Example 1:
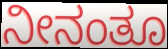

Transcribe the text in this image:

ನೀನಂತೂ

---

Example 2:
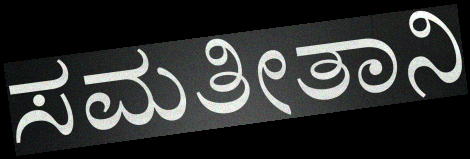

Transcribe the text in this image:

ಸಮತೀತಾನಿ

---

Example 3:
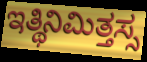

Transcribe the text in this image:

ಇತ್ಥಿನಿಮಿತ್ತಸ್ಸ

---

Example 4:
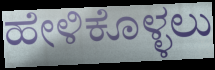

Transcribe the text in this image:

ಹೇಳಿಕೊಳ್ಳಲು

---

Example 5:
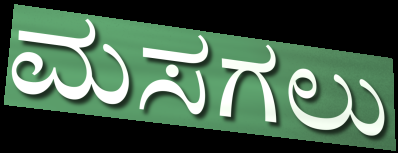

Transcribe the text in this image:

ಮಸಗಲು